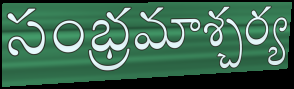
సంభ్రమాశ్చర్య